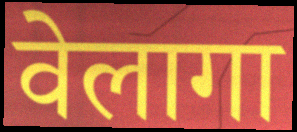
वेलागा